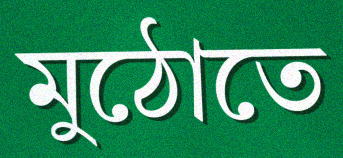
মুঠোতে